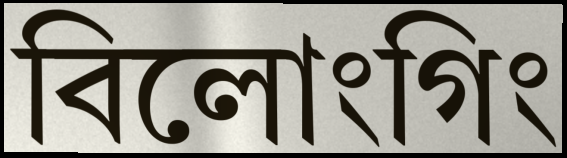
বিলোংগিং